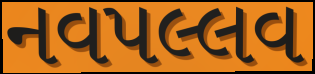
નવપલ્લવ